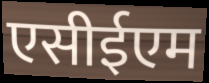
एसीईएम